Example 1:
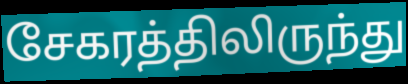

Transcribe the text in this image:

சேகரத்திலிருந்து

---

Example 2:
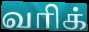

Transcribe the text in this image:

வரிக்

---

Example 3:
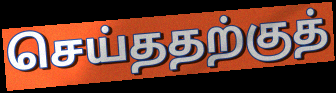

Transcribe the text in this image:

செய்ததற்குத்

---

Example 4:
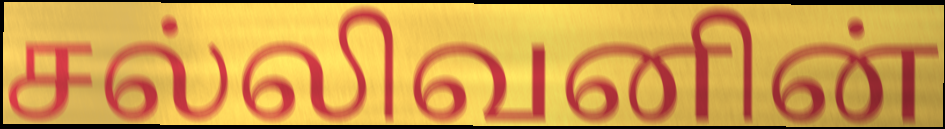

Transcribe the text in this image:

சல்லிவனின்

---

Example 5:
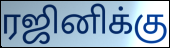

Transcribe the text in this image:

ரஜினிக்கு